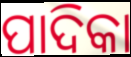
ପାଦିକା